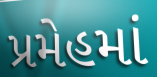
પ્રમેહમાં